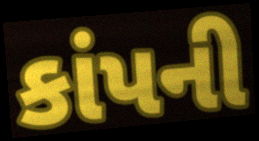
કાંપની